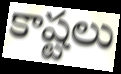
కాష్టలు